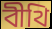
বীথি